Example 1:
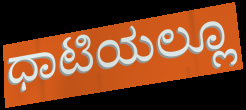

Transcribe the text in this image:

ಧಾಟಿಯಲ್ಲೂ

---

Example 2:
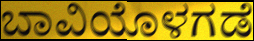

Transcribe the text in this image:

ಬಾವಿಯೊಳಗಡೆ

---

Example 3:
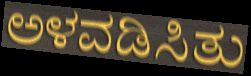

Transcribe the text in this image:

ಅಳವಡಿಸಿತು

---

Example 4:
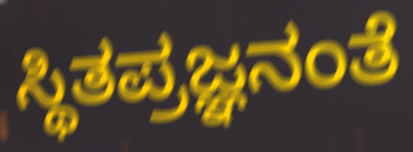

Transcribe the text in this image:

ಸ್ಥಿತಪ್ರಜ್ಞನಂತೆ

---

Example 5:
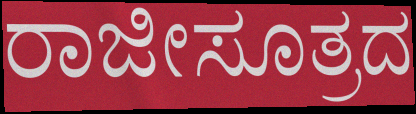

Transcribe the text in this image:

ರಾಜೀಸೂತ್ರದ